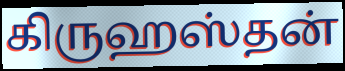
கிருஹஸ்தன்